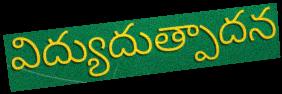
విద్యుదుత్పాదన